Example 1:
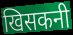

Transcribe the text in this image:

खिसकनी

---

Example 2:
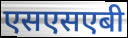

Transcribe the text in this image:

एसएसएबी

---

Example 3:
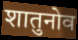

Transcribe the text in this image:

शातुनोव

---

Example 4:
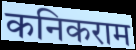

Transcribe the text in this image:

कनिकराम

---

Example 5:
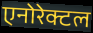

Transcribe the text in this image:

एनोरेक्टल